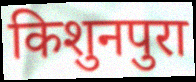
किशुनपुरा